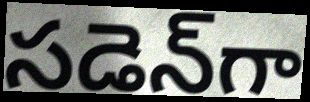
సడెన్‌గా